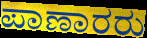
ಪಾಣಾರರು